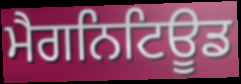
ਮੈਗਨਿਟਿਊਡ